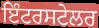
ਇੰਟਰਸਟੇਲਰ